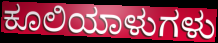
ಕೂಲಿಯಾಳುಗಳು